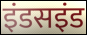
इंडसइंड